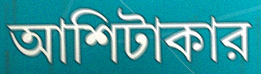
আশিটাকার